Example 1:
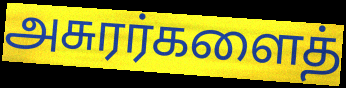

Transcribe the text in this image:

அசுரர்களைத்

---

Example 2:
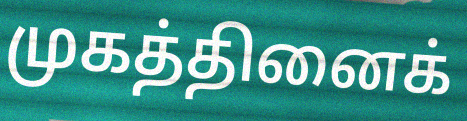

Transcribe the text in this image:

முகத்தினைக்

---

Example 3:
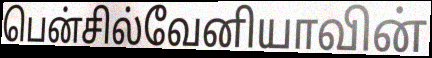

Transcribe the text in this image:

பென்சில்வேனியாவின்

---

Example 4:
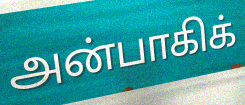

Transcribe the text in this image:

அன்பாகிக்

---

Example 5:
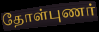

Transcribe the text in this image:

தோள்புணர்